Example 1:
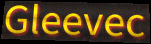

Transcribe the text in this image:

Gleevec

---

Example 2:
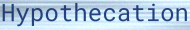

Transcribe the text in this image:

Hypothecation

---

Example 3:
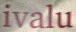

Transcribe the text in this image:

ivalu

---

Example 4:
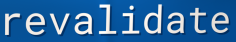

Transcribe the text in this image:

revalidate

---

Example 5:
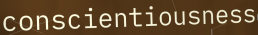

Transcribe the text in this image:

conscientiousness